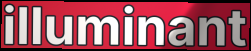
illuminant